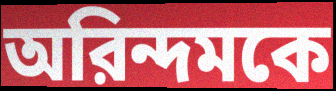
অরিন্দমকে